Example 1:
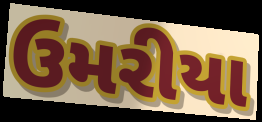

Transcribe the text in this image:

ઉમરીયા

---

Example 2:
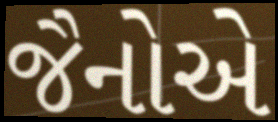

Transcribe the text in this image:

જૈનોએ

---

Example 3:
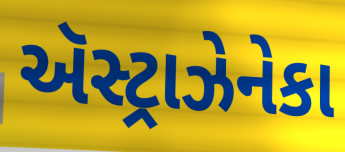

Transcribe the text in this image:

ઍસ્ટ્રાઝેનેકા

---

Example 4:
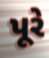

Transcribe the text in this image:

પૂરે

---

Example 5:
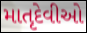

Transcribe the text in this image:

માતૃદેવીઓ